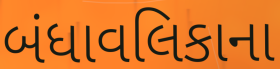
બંધાવલિકાના